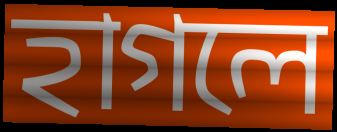
হাগলে